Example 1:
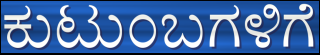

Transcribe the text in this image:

ಕುಟುಂಬಗಳಿಗೆ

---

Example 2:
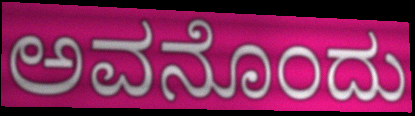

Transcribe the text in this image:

ಅವನೊಂದು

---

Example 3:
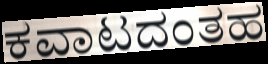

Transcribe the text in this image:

ಕವಾಟದಂತಹ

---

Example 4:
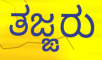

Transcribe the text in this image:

ತಜ್ಙರು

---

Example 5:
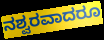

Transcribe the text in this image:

ನಶ್ವರವಾದರೂ